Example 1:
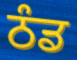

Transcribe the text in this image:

ਠੰਡ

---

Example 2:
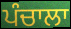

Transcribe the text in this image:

ਪੰਚਾਲਾ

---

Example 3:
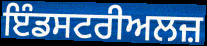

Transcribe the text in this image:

ਇੰਡਸਟਰੀਅਲਜ਼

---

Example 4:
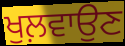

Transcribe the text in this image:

ਖੁਲ਼ਵਾਉਣ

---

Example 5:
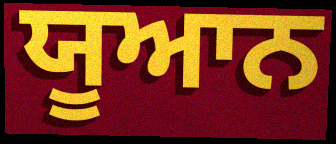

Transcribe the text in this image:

ਯੂਆਨ